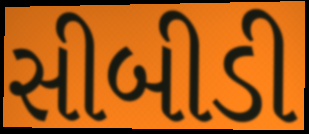
સીબીડી